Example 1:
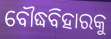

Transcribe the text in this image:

ବୌଦ୍ଧବିହାରକୁ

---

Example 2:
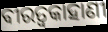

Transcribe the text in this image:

ବୀରତ୍ୱକାହାଣୀ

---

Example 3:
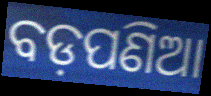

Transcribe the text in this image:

ବଡ଼ପଣିଆ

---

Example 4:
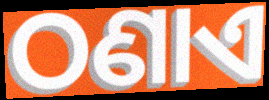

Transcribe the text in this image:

ଠଣାଏ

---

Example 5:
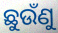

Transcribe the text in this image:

ଛୁଉଁଣୁ